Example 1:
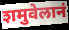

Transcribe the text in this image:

शमुवेलानं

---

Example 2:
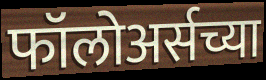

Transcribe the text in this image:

फॉलोअर्सच्या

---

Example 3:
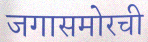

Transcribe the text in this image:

जगासमोरची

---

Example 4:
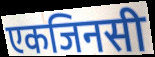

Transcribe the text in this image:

एकजिनसी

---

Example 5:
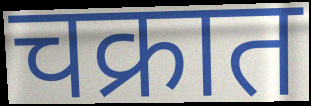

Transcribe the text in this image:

चक्रात